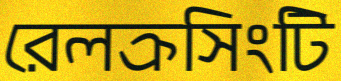
রেলক্রসিংটি